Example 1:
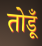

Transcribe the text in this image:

तोडूँ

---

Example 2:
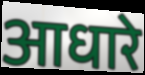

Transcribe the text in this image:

आधारे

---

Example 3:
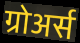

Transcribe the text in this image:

ग्रोअर्स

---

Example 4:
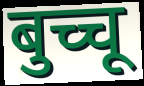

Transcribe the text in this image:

बुच्चू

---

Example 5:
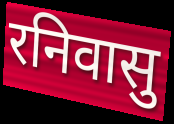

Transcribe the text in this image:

रनिवासु